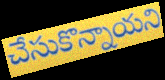
చేసుకొన్నాయని